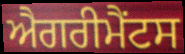
ਐਗਰੀਮੈਂਟਸ